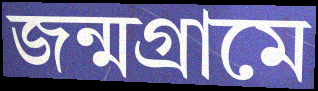
জন্মগ্রামে